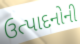
ઉત્પાદનોની